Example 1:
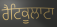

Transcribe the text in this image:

ਰੈਟਿਕੂਲਾਟਾ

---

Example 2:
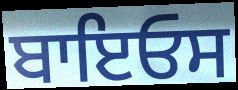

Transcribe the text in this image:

ਬਾਇਓਸ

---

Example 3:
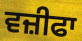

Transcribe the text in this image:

ਵਜ਼ੀਫਾ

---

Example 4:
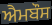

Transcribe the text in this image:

ਐਮਬੌਸ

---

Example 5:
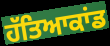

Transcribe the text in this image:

ਹੱਤਿਆਕਾਂਡ